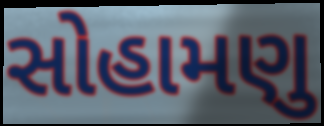
સોહામણુ